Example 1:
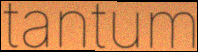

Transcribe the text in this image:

tantum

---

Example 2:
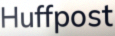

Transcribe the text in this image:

Huffpost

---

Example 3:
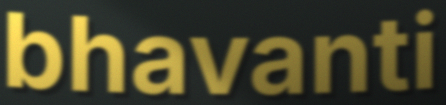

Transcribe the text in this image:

bhavanti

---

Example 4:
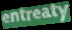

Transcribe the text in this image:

entreaty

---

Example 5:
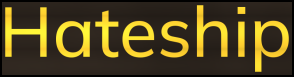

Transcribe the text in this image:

Hateship